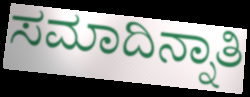
ಸಮಾದಿನ್ನಾತಿ